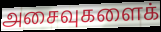
அசைவுகளைக்